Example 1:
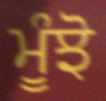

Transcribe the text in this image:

ਮੂੰਝੋ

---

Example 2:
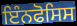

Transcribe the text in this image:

ਇੰਨਫੋਸਿਸ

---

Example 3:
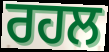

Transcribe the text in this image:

ਰਹਲ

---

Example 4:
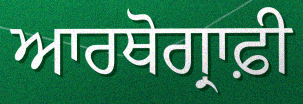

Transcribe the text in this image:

ਆਰਥੋਗ੍ਰਾਫ਼ੀ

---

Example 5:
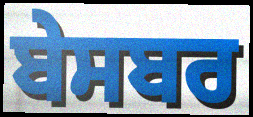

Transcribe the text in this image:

ਬੇਸਬਰ